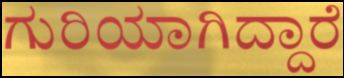
ಗುರಿಯಾಗಿದ್ದಾರೆ